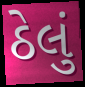
ઠેલું